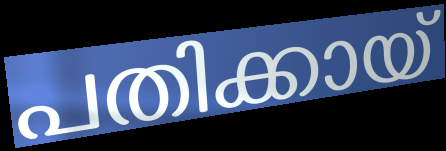
പതിക്കായ്